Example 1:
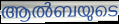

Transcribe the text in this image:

ആൽബയുടെ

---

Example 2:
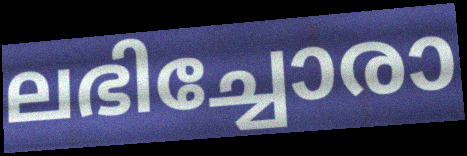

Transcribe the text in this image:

ലഭിച്ചോരാ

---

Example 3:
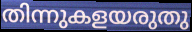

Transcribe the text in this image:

തിന്നുകളയരുതു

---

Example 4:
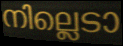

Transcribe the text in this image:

നില്ലെടാ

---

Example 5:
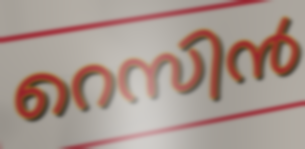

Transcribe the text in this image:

റെസിൻ